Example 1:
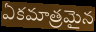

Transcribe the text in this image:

ఏకమాత్రమైన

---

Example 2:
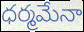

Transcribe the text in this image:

ధర్మమేనా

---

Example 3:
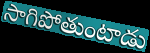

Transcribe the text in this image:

సాగిపోతుంటాడు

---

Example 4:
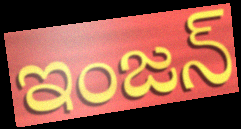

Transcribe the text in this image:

ఇంజన్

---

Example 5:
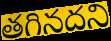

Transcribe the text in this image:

తగినదని